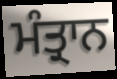
ਮੰਤ੍ਰਾਨ